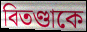
বিতণ্ডাকে